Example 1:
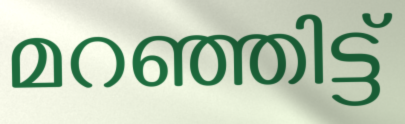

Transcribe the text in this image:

മറഞ്ഞിട്ട്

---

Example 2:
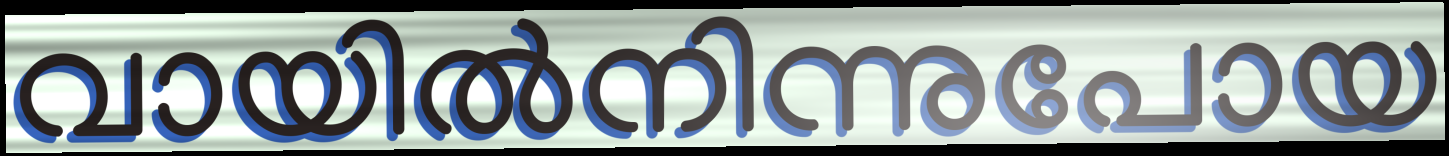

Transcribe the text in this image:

വായിൽനിന്നുപോയ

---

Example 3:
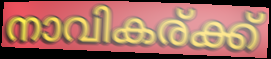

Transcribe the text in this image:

നാവികര്ക്ക്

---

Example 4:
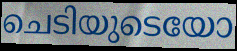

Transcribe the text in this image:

ചെടിയുടെയോ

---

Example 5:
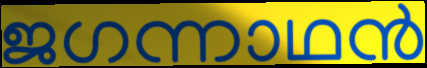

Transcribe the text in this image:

ജഗന്നാഥൻ